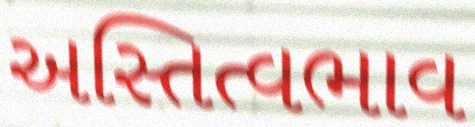
અસ્તિત્વભાવ